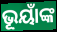
ଭୂୟାଁଙ୍କ